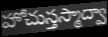
హోచుస్తస్మాద్వా